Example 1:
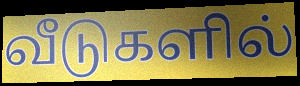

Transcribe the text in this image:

வீடுகளில்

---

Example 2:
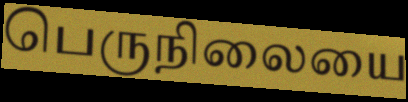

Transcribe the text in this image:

பெருநிலையை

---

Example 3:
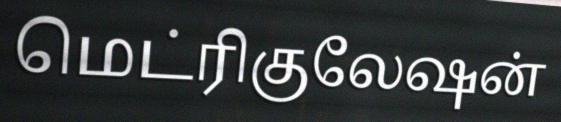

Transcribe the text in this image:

மெட்ரிகுலேஷன்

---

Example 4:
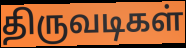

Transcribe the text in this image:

திருவடிகள்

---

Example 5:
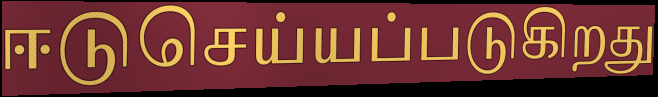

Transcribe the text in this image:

ஈடுசெய்யப்படுகிறது